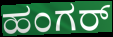
ಹಂಗರ್